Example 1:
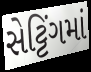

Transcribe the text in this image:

સેટ્ટિંગમાં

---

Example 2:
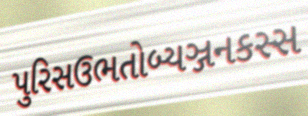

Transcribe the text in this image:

પુરિસઉભતોબ્યઞ્જનકસ્સ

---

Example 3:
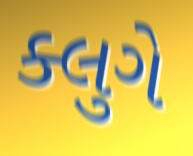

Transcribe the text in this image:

ક્લુગે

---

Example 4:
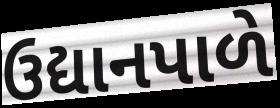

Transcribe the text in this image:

ઉદ્યાનપાળે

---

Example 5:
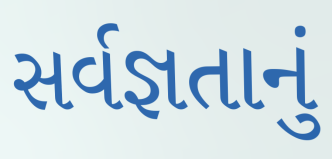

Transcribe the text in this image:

સર્વજ્ઞતાનું